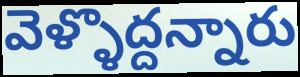
వెళ్ళొద్దన్నారు